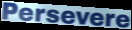
Persevere